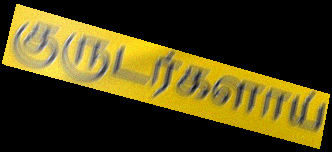
குருடர்களாய்